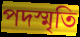
পদস্মৃতি